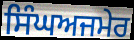
ਸਿੰਘਅਜਮੇਰ